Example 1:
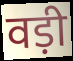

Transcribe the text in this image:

वड़ी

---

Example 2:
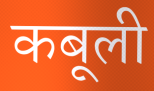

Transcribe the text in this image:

कबूली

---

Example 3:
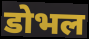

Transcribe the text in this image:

डोभल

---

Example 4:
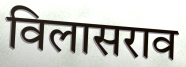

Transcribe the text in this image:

विलासराव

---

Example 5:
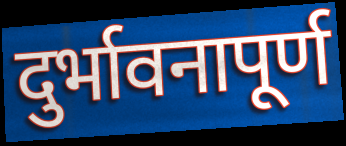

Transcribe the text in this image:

दुर्भावनापूर्ण